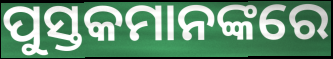
ପୁସ୍ତକମାନଙ୍କରେ